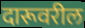
दारूवरील